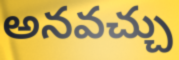
అనవచ్చు